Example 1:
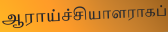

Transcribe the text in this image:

ஆராய்ச்சியாளராகப்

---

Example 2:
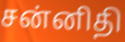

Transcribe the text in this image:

சன்னிதி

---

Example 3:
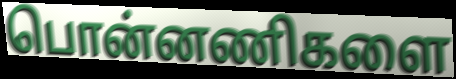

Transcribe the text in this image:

பொன்னணிகளை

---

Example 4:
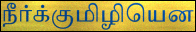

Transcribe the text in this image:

நீர்க்குமிழியென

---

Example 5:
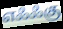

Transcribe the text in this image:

எஃஃகு